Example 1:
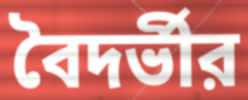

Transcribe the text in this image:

বৈদর্ভীর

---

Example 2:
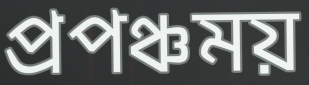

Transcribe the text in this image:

প্রপঞ্চময়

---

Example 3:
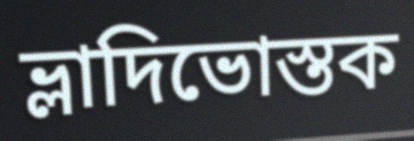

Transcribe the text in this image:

ভ্লাদিভোস্তক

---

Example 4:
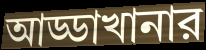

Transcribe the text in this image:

আড্ডাখানার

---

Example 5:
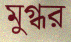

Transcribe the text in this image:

মুগ্ধর